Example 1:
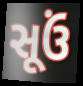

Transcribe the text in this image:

સૂઉં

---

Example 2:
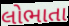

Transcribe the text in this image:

લોભાતા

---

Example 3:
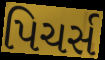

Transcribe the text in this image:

પિચર્સ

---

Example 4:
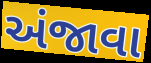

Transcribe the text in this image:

અંજાવા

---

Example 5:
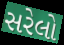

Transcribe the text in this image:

સરેલો